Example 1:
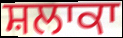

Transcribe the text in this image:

ਸ਼ਲਾਕਾ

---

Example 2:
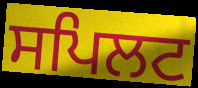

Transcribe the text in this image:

ਸਪਿਲਟ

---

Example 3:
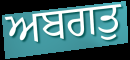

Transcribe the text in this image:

ਅਬਗਤੁ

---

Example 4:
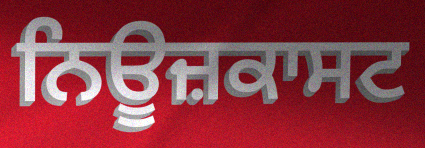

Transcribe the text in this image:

ਨਿਊਜ਼ਕਾਸਟ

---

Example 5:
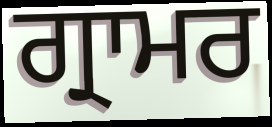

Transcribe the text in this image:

ਗ੍ਰਾਮਰ